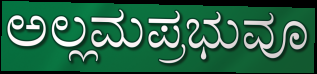
ಅಲ್ಲಮಪ್ರಭುವೂ